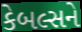
કેબલ્સને